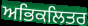
ਅਭਿਕਲਿਤਰ